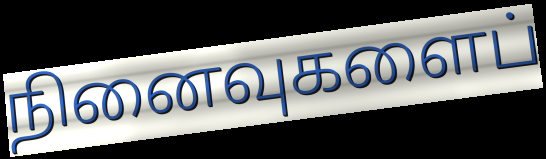
நினைவுகளைப்